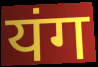
यंग